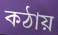
কঠায়